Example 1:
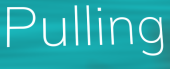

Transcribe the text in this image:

Pulling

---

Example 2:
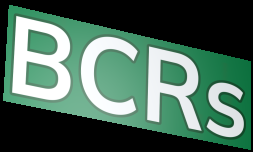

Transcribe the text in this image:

BCRs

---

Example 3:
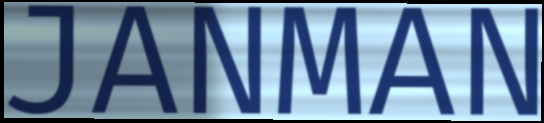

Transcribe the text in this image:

JANMAN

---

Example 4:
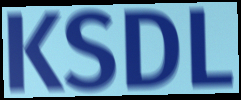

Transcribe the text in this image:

KSDL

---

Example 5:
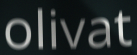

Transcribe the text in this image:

olivat